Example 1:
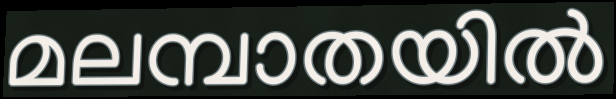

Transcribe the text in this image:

മലമ്പാതയിൽ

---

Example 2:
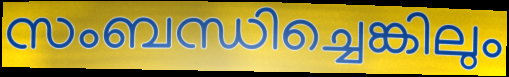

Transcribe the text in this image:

സംബന്ധിച്ചെങ്കിലും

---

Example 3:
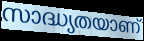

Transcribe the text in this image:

സാദ്ധ്യതയാണ്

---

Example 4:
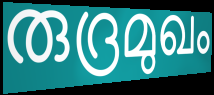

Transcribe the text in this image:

രുദ്രമുഖം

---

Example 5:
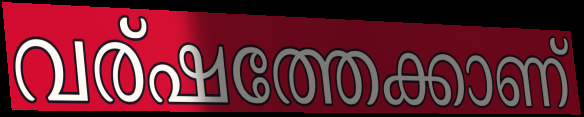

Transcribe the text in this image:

വര്ഷത്തേക്കാണ്